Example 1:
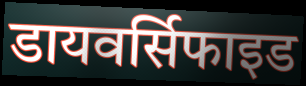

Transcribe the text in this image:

डायवर्सिफाइड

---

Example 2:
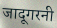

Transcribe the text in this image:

जादूगरनी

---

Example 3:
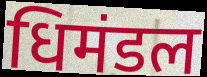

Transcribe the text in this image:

धिमंडल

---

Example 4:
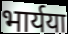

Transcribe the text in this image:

भार्यया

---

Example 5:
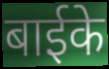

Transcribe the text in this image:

बाईके